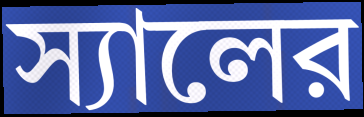
স্যালের